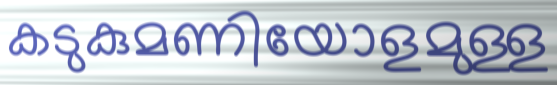
കടുകുമണിയോളമുള്ള